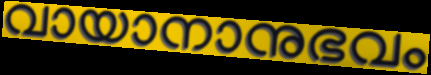
വായാനാനുഭവം